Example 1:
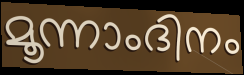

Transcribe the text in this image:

മൂന്നാംദിനം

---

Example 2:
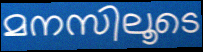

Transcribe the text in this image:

മനസിലൂടെ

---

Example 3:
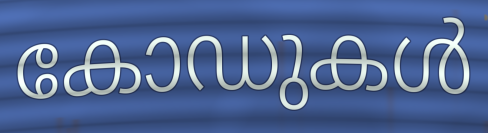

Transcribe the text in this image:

കോഡുകൾ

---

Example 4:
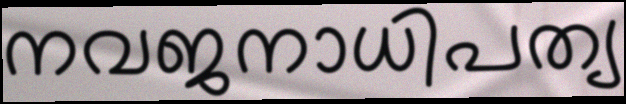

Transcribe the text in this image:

നവജനാധിപത്യ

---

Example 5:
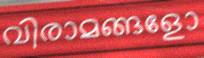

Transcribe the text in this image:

വിരാമങ്ങളോ